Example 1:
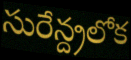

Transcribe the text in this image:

సురేన్ద్రలోక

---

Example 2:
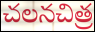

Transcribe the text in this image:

చలనచిత్ర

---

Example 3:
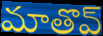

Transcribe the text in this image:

మాతొవ్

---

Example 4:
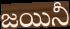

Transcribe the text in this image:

జయినీ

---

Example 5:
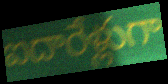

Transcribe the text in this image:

ఐదారేళ్లుగా